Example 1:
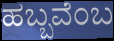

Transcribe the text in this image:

ಹಬ್ಬವೆಂಬ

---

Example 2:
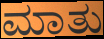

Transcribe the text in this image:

ಮಾತು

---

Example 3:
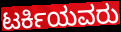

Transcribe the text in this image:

ಟರ್ಕಿಯವರು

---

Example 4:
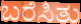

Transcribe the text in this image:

ಬರೆಸಿತು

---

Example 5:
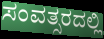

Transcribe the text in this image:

ಸಂವತ್ಸರದಲ್ಲಿ